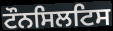
ਟੌਨਸਿਲਟਿਸ